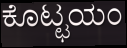
ಕೊಟ್ಟಯಂ